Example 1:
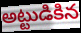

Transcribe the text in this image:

అట్టుడికిన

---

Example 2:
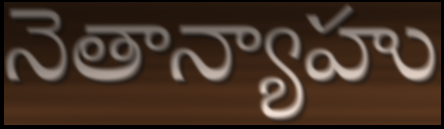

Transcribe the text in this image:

నెతాన్యాహు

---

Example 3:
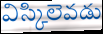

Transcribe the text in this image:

విస్కిలెవడు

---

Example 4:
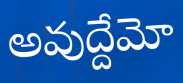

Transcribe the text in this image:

అవుద్దేమో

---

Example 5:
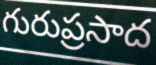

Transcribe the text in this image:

గురుప్రసాద